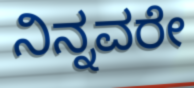
ನಿನ್ನವರೇ